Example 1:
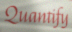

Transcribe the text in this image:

Quantify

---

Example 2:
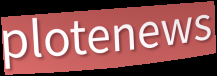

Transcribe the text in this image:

plotenews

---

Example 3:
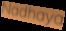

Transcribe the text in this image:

Nadhaya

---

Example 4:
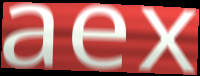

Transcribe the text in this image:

aex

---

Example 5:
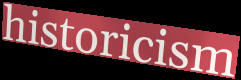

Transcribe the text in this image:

historicism